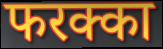
फरक्का